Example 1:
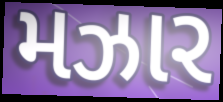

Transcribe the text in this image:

મઝાર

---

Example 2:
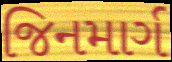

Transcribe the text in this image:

જિનમાર્ગ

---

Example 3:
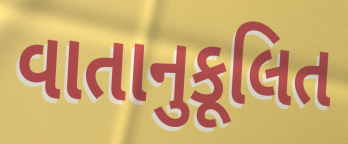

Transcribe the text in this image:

વાતાનુકૂલિત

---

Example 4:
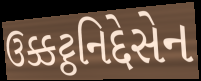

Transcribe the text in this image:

ઉક્કટ્ઠનિદ્દેસેન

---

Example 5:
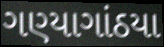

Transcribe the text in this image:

ગણ્યાગાંઠયા